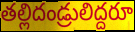
తల్లిదండ్రులిద్దరూ